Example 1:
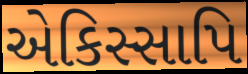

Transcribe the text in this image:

એકિસ્સાપિ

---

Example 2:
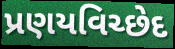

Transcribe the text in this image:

પ્રણયવિચ્છેદ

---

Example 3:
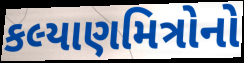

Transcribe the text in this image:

કલ્યાણમિત્રોનો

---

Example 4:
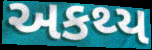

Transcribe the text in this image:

અકથ્ય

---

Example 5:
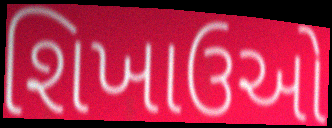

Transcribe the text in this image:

શિખાઉઓ